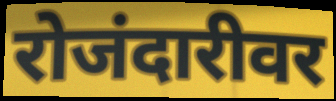
रोजंदारीवर